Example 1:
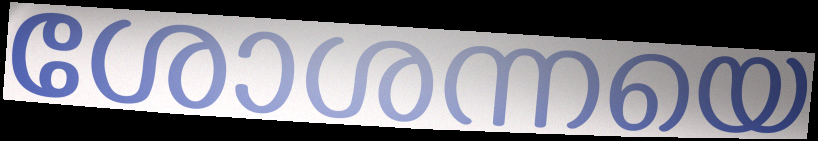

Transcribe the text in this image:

ശോശന്നയെ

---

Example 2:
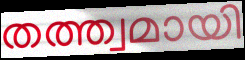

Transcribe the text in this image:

തത്ത്വമായി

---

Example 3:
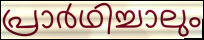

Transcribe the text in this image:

പ്രാർഥിച്ചാലും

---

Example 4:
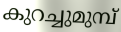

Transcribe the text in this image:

കുറച്ചുമുമ്പ്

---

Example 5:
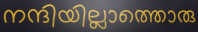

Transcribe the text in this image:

നന്ദിയില്ലാത്തൊരു